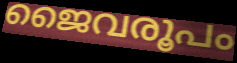
ജൈവരൂപം